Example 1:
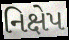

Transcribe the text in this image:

નિક્ષેપ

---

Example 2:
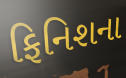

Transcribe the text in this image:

ફિનિશના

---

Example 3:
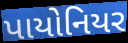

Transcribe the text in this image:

પાયોનિયર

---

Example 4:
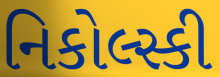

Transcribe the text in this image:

નિકોલ્સ્કી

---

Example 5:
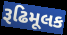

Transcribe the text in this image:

રૂઢિમૂલક